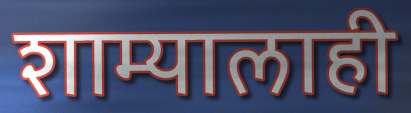
शाम्यालाही